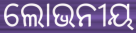
ଲୋଭନୀୟ